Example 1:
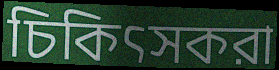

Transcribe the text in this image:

চিকিৎসকরা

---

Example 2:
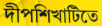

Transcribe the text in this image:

দীপশিখাটিতে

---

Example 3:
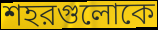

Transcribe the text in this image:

শহরগুলোকে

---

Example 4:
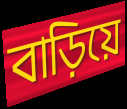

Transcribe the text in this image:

বাড়িয়ে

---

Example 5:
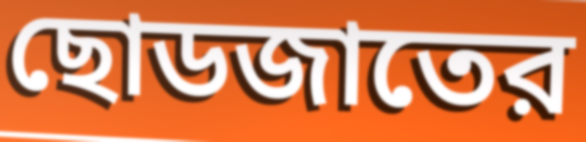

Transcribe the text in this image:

ছোডজাতের